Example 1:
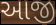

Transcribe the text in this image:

આજી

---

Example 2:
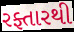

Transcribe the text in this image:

રફ્તારથી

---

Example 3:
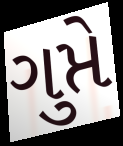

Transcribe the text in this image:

ગુપ્તે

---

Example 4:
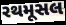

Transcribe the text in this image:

રથમૂસલ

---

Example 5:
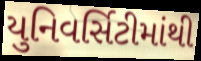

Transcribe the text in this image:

યુનિવર્સિટીમાંથી